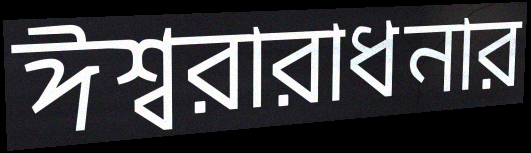
ঈশ্বরারাধনার